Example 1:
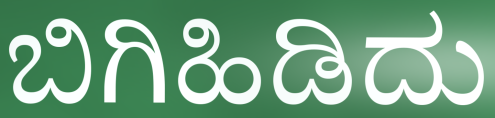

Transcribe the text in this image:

ಬಿಗಿಹಿಡಿದು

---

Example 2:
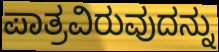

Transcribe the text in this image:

ಪಾತ್ರವಿರುವುದನ್ನು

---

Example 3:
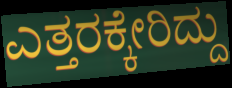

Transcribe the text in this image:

ಎತ್ತರಕ್ಕೇರಿದ್ದು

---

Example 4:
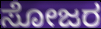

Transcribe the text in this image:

ಸೋಜರ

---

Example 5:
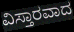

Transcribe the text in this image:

ವಿಸ್ತಾರವಾದ